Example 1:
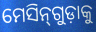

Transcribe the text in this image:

ମେସିନ୍‌ଗୁଡ଼ାକୁ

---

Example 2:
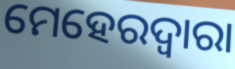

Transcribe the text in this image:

ମେହେରଦ୍ୱାରା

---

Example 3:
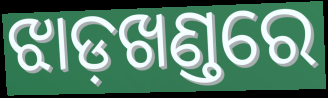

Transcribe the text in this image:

ଝାଡ଼ଖଣ୍ଡରେ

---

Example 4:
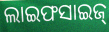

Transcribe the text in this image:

ଲାଇଫସାଇଜ୍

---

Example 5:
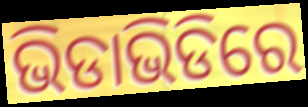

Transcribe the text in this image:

ଭିଡାଭିଡିରେ